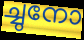
ച്ചുനോ